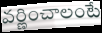
వర్ణించాలంటే